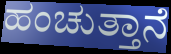
ಹಂಚುತ್ತಾನೆ